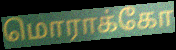
மொராக்கோ